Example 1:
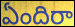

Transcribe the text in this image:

ఏందిరా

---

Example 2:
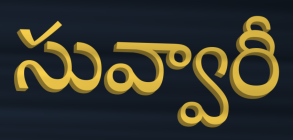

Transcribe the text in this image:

సువ్వారీ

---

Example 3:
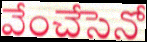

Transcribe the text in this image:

వేంచేసెనో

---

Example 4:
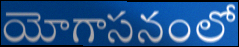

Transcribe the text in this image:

యోగాసనంలో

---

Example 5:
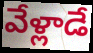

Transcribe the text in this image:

వేళ్లాడే